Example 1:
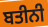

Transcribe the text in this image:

ਬਤੀਨੀ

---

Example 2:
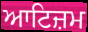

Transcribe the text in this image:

ਆਟਿਜ਼ਮ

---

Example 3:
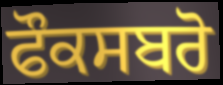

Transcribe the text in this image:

ਫੌਕਸਬਰੋ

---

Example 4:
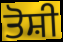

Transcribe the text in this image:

ਤੋਸ਼ੀ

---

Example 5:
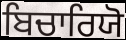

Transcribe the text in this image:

ਬਿਚਾਰਿਯੋ